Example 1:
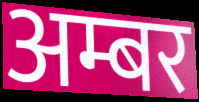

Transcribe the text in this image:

अम्बर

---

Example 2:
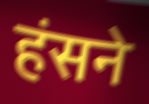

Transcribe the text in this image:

हंसने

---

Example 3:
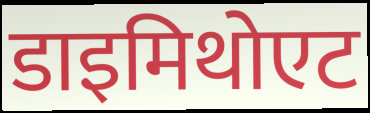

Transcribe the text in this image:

डाइमिथोएट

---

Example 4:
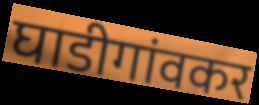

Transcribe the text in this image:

घाडीगांवकर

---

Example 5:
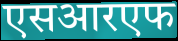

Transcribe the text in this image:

एसआरएफ